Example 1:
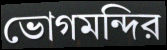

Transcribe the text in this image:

ভোগমন্দির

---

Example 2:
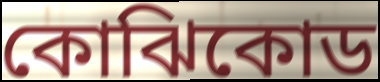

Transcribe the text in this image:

কোঝিকোড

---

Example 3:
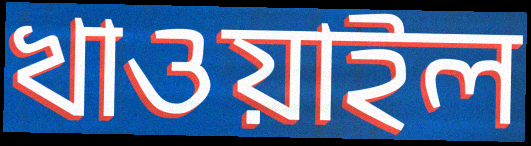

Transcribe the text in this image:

খাওয়াইল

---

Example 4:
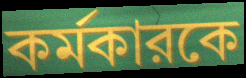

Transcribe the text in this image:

কর্মকারকে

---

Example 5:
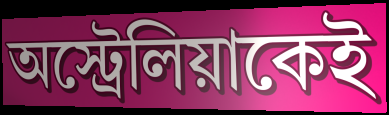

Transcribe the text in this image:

অস্ট্রেলিয়াকেই